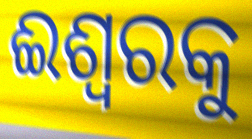
ଈଶ୍ୱରକୁ